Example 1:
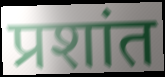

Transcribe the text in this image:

प्रशांत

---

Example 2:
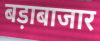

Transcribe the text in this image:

बड़ाबाजार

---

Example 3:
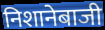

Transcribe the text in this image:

निशानेबाजी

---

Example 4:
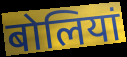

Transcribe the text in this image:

बोलियां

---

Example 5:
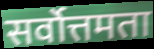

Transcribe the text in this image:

सर्वोत्तमता